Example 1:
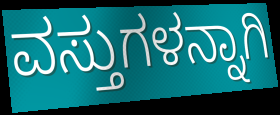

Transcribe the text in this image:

ವಸ್ತುಗಳನ್ನಾಗಿ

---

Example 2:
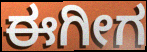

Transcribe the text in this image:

ಈಗೀಗ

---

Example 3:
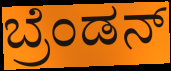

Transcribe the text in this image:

ಬ್ರೆಂಡನ್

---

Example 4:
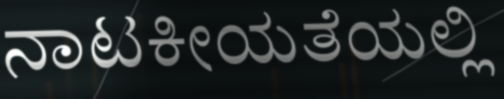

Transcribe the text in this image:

ನಾಟಕೀಯತೆಯಲ್ಲಿ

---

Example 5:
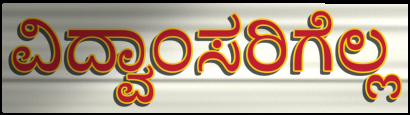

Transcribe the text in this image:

ವಿದ್ವಾಂಸರಿಗೆಲ್ಲ